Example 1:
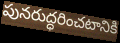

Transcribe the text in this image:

పునరుద్ధరించటానికి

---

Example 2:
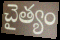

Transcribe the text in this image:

చైత్యం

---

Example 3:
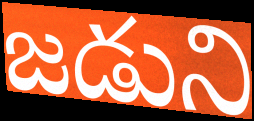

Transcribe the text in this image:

జడుని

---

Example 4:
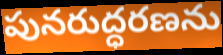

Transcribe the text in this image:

పునరుద్ధరణను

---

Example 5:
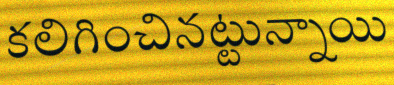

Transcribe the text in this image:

కలిగించినట్టున్నాయి